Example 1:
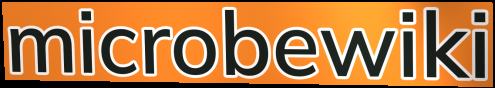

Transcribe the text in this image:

microbewiki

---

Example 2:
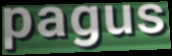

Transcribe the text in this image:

pagus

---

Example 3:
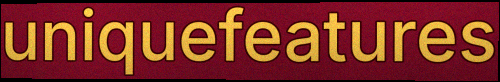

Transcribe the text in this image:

uniquefeatures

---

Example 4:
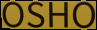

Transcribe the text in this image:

OSHO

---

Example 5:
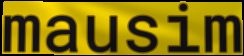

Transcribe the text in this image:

mausim